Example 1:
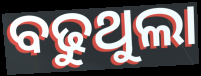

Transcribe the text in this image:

ବଢୁଥୁଲା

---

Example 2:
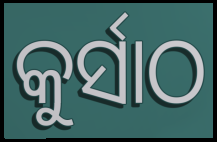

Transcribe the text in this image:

କୁର୍ସାଠ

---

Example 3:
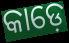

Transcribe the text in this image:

କାଡ଼େ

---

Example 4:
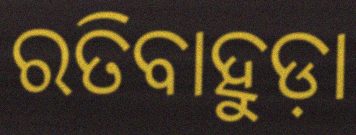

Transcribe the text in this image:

ରତିବାହୁଡ଼ା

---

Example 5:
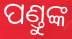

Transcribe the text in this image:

ପଣ୍ତୁଙ୍କ